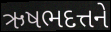
ઋષભદત્તને